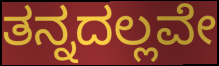
ತನ್ನದಲ್ಲವೇ